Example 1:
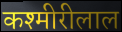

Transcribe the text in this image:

कश्मीरीलाल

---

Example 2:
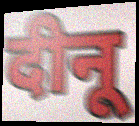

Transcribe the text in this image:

दीनू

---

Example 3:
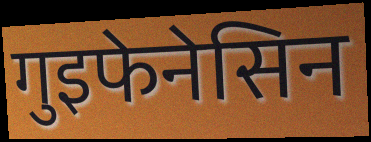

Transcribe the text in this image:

गुइफेनेसिन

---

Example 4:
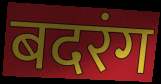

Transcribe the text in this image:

बदरंग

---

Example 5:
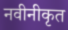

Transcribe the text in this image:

नवीनीकृत